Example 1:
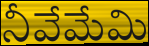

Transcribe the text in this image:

నీవేమేమి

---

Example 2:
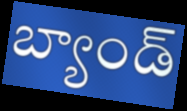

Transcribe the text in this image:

బ్యాండ్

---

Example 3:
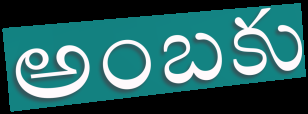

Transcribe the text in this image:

అంబకు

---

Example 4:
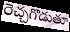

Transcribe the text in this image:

రెచ్చగొడుతూ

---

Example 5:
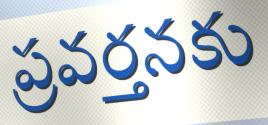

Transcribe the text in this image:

ప్రవర్తనకు